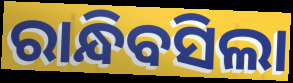
ରାନ୍ଧିବସିଲା